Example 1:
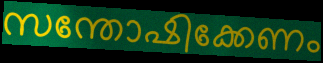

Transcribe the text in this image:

സന്തോഷിക്കേണം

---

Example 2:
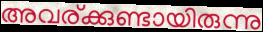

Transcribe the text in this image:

അവര്ക്കുണ്ടായിരുന്നു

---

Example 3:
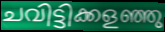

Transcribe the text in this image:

ചവിട്ടിക്കളഞ്ഞു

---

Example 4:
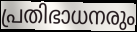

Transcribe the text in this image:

പ്രതിഭാധനരും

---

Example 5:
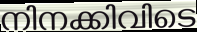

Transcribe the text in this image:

നിനക്കിവിടെ